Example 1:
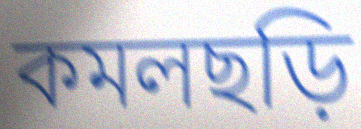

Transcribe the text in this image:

কমলছড়ি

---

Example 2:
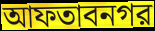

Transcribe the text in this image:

আফতাবনগর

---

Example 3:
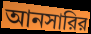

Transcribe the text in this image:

আনসারির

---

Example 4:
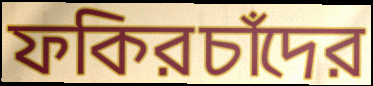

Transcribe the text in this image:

ফকিরচাঁদের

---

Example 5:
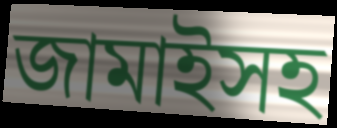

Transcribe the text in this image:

জামাইসহ